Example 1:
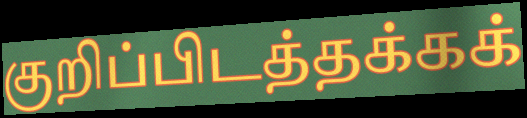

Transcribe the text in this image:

குறிப்பிடத்தக்கக்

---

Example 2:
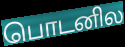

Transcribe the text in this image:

பொடனில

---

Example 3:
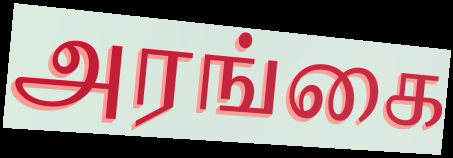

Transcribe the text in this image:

அரங்கை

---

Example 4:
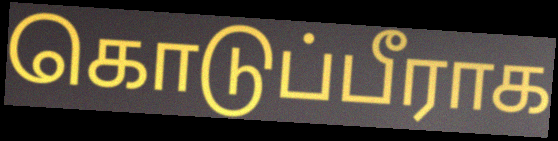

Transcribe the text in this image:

கொடுப்பீராக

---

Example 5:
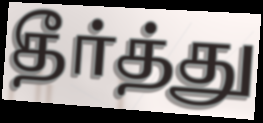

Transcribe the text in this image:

தீர்த்து